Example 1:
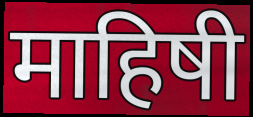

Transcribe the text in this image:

माहिषी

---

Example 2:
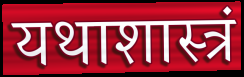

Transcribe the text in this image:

यथाशास्त्रं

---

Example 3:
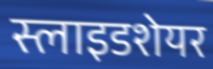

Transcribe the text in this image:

स्लाइडशेयर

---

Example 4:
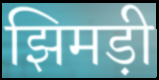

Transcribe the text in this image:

झिमड़ी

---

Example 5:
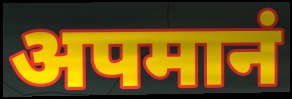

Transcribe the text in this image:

अपमानं